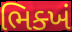
ભિક્ખં